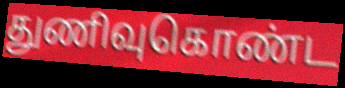
துணிவுகொண்ட